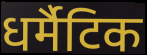
धर्मैटिक